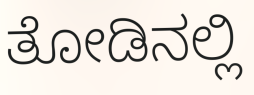
ತೋಡಿನಲ್ಲಿ